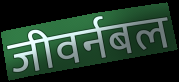
जीवर्नबल